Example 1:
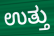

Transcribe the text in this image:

ಉತ್ತು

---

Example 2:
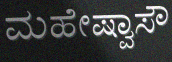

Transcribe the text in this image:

ಮಹೇಷ್ವಾಸೌ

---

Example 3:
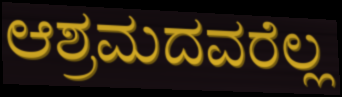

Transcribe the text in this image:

ಆಶ್ರಮದವರೆಲ್ಲ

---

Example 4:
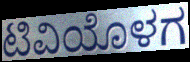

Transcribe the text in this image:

ಟಿವಿಯೊಳಗ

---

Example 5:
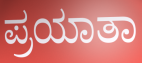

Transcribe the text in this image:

ಪ್ರಯಾತಾ